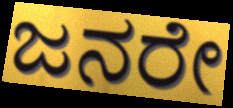
ಜನರೇ